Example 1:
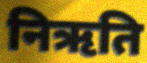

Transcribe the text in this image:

निऋति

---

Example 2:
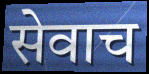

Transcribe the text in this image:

सेवाच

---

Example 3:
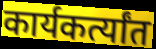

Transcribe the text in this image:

कार्यकर्त्यांत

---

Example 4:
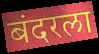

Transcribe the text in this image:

बंदरला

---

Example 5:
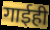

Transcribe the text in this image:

गाईही